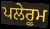
ਪਲੇਰੂਮ